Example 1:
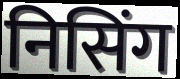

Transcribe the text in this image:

निसिंग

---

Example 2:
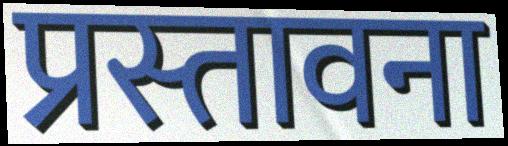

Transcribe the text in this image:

प्रस्‍तावना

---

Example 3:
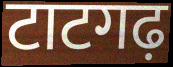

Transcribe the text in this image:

टाटगढ़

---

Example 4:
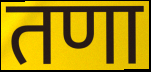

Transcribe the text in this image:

तणा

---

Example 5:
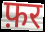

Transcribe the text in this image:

फ़र